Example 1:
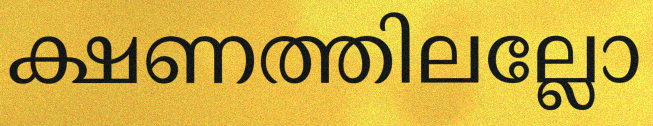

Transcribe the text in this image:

ക്ഷണത്തിലല്ലോ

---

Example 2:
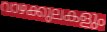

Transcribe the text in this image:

വാഴക്കുലകളും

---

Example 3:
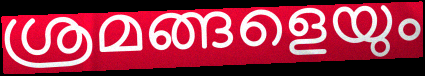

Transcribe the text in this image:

ശ്രമങ്ങളെയും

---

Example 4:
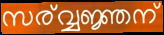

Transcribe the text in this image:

സര്വ്വജ്ഞന്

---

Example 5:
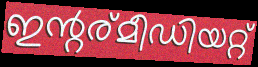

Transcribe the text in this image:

ഇന്റര്മീഡിയറ്റ്